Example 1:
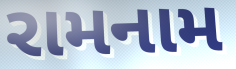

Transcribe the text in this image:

રામનામ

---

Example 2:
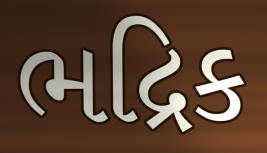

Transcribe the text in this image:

ભદ્રિક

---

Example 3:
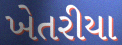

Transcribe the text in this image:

ખેતરીયા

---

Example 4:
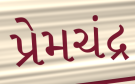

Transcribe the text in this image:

પ્રેમચંદ્ર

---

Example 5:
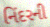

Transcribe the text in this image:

નિંદરની